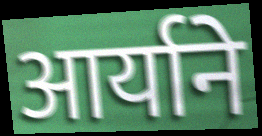
आर्याने